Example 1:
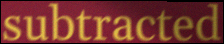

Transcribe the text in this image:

subtracted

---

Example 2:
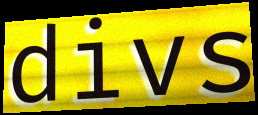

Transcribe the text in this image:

divs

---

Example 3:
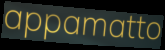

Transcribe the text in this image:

appamatto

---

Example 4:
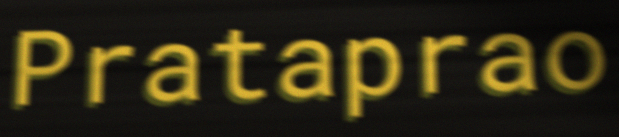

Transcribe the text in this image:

Prataprao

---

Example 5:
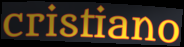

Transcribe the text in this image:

cristiano